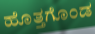
ಹೊತ್ತಗೊಂಡ